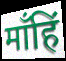
माँहिं